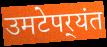
उमटेपर्यंत